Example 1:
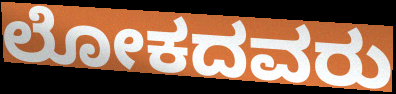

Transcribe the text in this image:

ಲೋಕದವರು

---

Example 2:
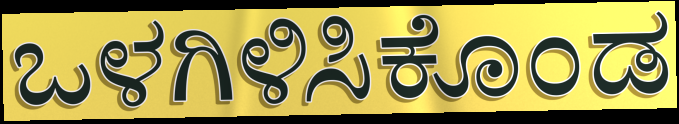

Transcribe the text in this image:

ಒಳಗಿಳಿಸಿಕೊಂಡ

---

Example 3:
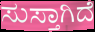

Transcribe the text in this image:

ಸುಸ್ತಾಗಿದೆ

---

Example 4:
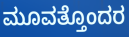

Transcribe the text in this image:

ಮೂವತ್ತೊಂದರ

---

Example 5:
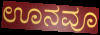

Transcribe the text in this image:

ಊನವೂ